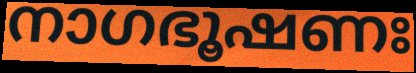
നാഗഭൂഷണഃ